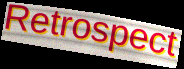
Retrospect